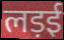
लड़ई